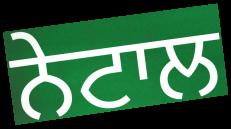
ਨੇਟਾਲ